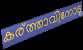
കര്ത്താവിനോടു